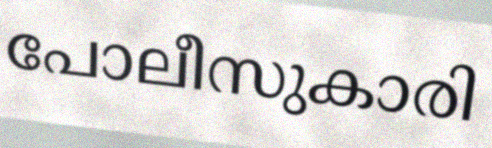
പോലീസുകാരി